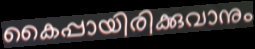
കൈപ്പായിരിക്കുവാനും